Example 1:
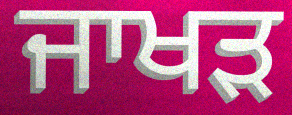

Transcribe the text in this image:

ਜਾਖੜ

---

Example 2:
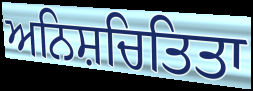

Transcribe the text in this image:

ਅਨਿਸ਼ਚਿਤਿਤਾ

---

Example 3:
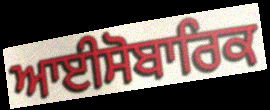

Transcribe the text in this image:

ਆਈਸੋਬਾਰਿਕ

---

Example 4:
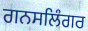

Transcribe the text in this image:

ਗਨਸਲਿੰਗਰ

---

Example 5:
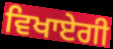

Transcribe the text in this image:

ਵਿਖਾਏਗੀ